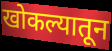
खोकल्यातून